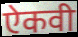
ऐकवी